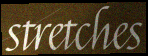
stretches